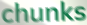
chunks